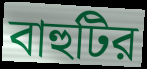
বাহুটির